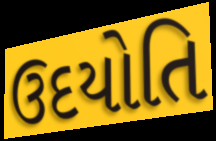
ઉદયોતિ